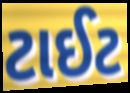
ટાઈટ